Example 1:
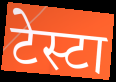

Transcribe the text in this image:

टेस्टा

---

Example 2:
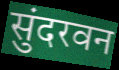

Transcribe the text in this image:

सुंदरवन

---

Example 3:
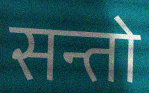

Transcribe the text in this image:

सन्तो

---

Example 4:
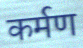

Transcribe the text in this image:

कर्मण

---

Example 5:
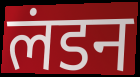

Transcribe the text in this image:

लंडन